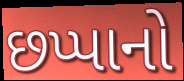
છપ્પાનો